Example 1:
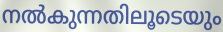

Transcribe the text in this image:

നൽകുന്നതിലൂടെയും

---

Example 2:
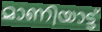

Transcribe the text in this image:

മാണിയാട്ട്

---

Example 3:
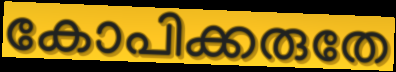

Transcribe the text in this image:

കോപിക്കരുതേ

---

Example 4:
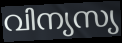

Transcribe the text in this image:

വിന്യസ്യ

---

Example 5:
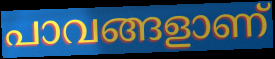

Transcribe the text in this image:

പാവങ്ങളാണ്